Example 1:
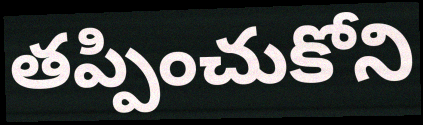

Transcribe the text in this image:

తప్పించుకోని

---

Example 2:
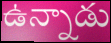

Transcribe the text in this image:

ఉన్నాడు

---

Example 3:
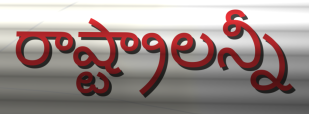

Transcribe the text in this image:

రాష్ట్రాలన్నీ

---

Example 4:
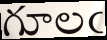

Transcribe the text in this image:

గూలఁ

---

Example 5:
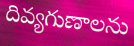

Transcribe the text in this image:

దివ్యగుణాలను